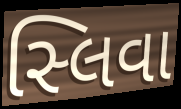
સ્લિવા